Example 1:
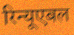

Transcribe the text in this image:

रिन्यूएबल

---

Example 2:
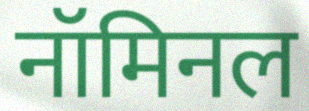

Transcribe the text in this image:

नॉमिनल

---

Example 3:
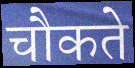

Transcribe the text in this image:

चौकते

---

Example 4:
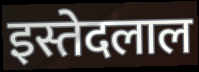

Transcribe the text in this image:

इस्तेदलाल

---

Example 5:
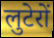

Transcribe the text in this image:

लुटेरों